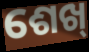
ଶେଖ୍